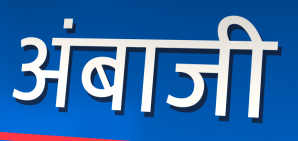
अंबाजी